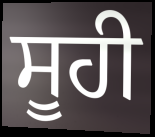
ਸੂਹੀ